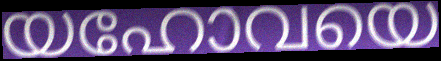
യഹോവയെ